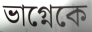
ভাগ্নেকে